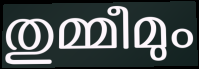
തുമ്മീമും